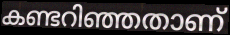
കണ്ടറിഞ്ഞതാണ്